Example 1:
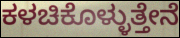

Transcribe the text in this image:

ಕಳಚಿಕೊಳ್ಳುತ್ತೇನೆ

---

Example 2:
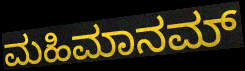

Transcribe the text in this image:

ಮಹಿಮಾನಮ್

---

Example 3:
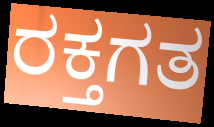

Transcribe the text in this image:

ರಕ್ತಗತ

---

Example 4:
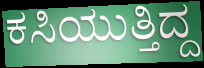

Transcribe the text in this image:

ಕಸಿಯುತ್ತಿದ್ದ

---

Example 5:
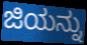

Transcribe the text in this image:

ಜಿಯನ್ನು